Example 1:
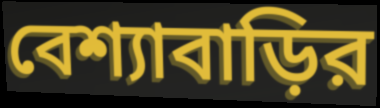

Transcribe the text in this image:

বেশ্যাবাড়ির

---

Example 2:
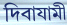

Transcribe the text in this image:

দিবাযামী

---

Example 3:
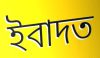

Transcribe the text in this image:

ইবাদত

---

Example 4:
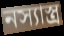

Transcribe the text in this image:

নস্যাস্ত্র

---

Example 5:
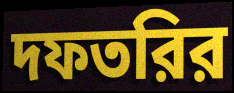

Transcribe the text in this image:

দফতরির